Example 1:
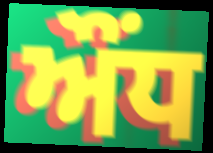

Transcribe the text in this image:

ਔਂਧ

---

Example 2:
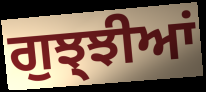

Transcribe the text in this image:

ਗੁਝ੍ਝੀਆਂ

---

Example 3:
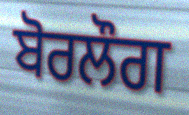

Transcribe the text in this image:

ਬੋਰਲੌਗ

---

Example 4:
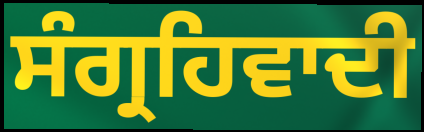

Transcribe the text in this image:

ਸੰਗ੍ਰਹਿਵਾਦੀ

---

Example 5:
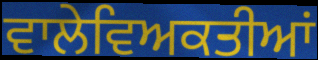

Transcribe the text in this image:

ਵਾਲੇਵਿਅਕਤੀਆਂ